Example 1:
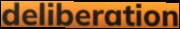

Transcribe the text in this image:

deliberation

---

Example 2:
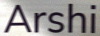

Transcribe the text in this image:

Arshi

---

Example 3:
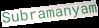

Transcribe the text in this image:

Subramanyam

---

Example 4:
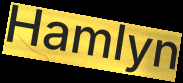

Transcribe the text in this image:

Hamlyn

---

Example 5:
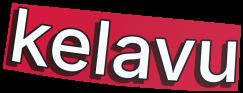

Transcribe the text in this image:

kelavu